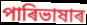
পাৰিভাষাৰ